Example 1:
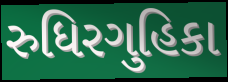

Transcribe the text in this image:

રુધિરગુહિકા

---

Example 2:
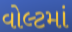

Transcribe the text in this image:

વોલ્ટમાં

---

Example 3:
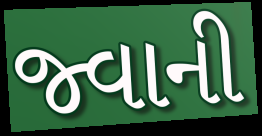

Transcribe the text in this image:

જ્વાની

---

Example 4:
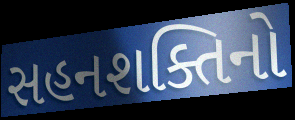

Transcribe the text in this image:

સહનશક્તિનો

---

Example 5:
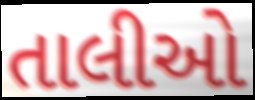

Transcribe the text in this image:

તાલીઓ